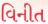
વિનીત